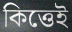
কিত্তেই